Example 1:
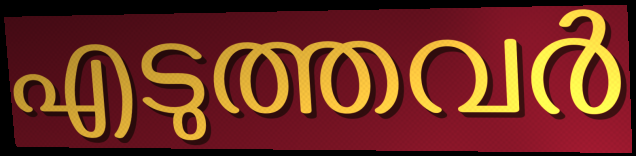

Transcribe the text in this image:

എടുത്തവർ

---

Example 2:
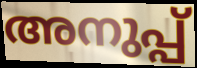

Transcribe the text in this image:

അനുപ്പ്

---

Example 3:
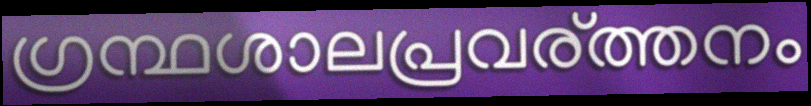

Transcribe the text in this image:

ഗ്രന്ഥശാലപ്രവര്ത്തനം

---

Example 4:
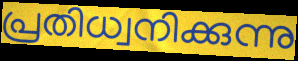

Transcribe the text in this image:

പ്രതിധ്വനിക്കുന്നു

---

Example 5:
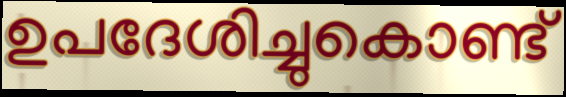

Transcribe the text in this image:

ഉപദേശിച്ചുകൊണ്ട്